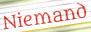
Niemand